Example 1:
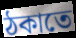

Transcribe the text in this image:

ঠকাতে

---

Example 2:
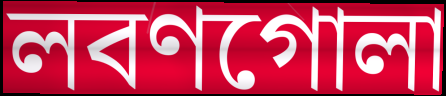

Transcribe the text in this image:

লবণগোলা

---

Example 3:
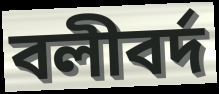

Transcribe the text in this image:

বলীবর্দ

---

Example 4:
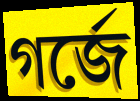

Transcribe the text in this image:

গর্জে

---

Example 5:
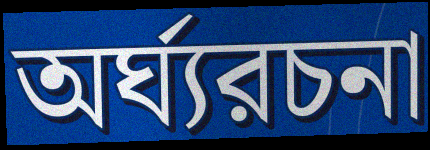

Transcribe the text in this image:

অর্ঘ্যরচনা